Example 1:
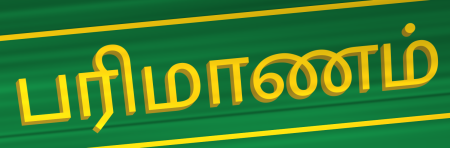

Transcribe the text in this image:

பரிமாணம்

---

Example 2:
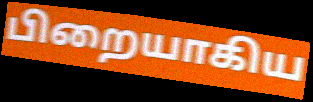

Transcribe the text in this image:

பிறையாகிய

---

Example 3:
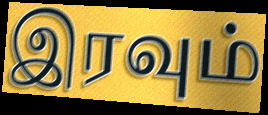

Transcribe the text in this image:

இரவும்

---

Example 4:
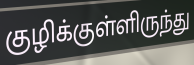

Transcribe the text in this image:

குழிக்குள்ளிருந்து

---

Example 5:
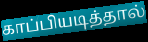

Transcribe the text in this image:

காப்பியடித்தால்